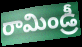
రామిండ్రీ